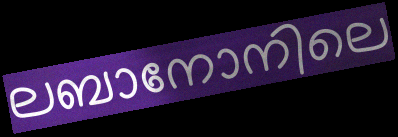
ലബാനോനിലെ